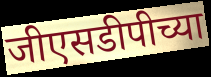
जीएसडीपीच्या